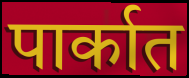
पार्कात